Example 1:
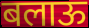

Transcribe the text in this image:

बलाऊ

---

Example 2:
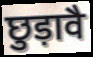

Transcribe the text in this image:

छुड़ावै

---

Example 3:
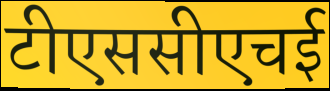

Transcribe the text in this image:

टीएससीएचई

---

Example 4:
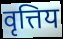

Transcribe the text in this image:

वृत्तिय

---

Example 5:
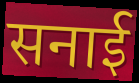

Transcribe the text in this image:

सनाई